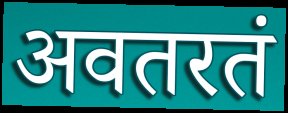
अवतरतं